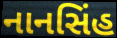
નાનસિંહ